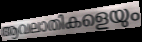
ആവലാതികളെയും